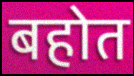
बहोत